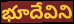
భూదేవిని